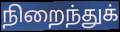
நிறைந்துக்